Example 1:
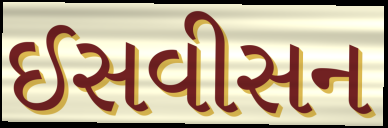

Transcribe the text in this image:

ઈસવીસન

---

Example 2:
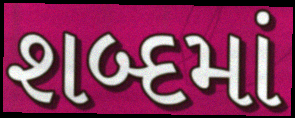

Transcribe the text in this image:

શબ્દમાં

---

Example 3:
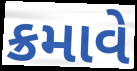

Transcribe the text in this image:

ક્રમાવે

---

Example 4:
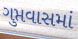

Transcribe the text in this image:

ગુપ્તવાસમાં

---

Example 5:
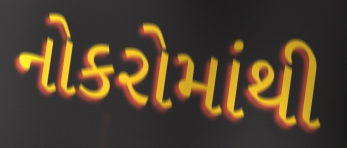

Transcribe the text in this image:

નોકરોમાંથી